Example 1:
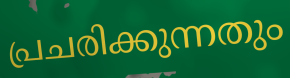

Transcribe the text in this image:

പ്രചരിക്കുന്നതും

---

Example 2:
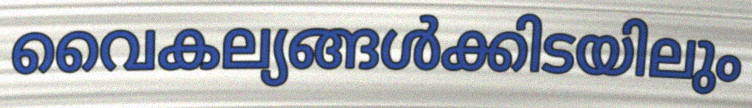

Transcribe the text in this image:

വൈകല്യങ്ങൾക്കിടയിലും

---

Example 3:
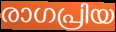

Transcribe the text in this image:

രാഗപ്രിയ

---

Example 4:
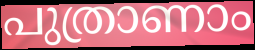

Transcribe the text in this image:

പുത്രാണാം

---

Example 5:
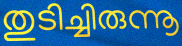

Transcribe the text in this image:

തുടിച്ചിരുന്നൂ